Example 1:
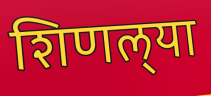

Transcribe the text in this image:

शिणल्या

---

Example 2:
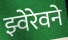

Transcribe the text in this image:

झ्वेरेवने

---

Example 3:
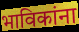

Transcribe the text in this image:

भाविकांना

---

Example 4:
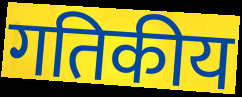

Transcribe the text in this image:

गतिकीय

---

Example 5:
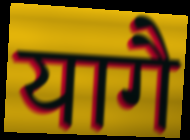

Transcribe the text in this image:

यागै